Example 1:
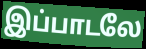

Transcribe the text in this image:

இப்பாடலே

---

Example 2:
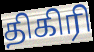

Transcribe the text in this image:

திகிரி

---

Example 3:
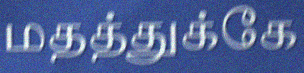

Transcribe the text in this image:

மதத்துக்கே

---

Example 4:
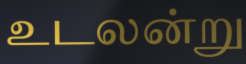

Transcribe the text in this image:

உடலன்று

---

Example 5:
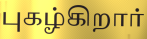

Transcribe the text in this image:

புகழ்கிறார்